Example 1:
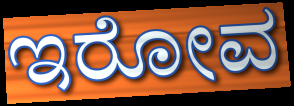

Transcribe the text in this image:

ಇರೋವ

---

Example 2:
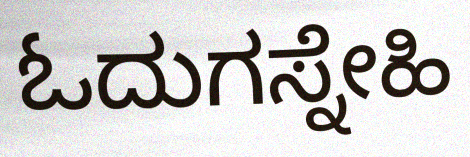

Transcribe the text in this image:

ಓದುಗಸ್ನೇಹಿ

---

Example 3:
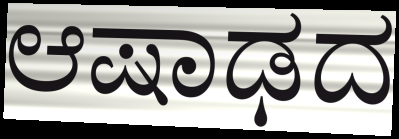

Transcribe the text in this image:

ಆಷಾಢದ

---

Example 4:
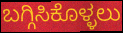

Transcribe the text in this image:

ಬಗ್ಗಿಸಿಕೊಳ್ಳಲು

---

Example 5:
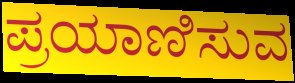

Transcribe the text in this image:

ಪ್ರಯಾಣಿಸುವ